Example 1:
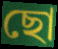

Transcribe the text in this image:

ছো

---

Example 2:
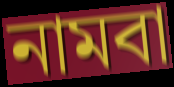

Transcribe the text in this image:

নামবা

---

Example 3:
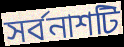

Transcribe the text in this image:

সর্বনাশটি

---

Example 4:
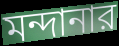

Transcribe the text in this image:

মন্দানার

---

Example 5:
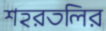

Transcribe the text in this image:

শহরতলির